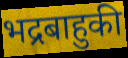
भद्रबाहुकी